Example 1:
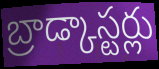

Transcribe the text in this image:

బ్రాడ్కాస్టర్లు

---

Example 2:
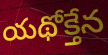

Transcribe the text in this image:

యథోక్తేన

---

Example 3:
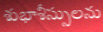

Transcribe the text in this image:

శుభాశీస్సులను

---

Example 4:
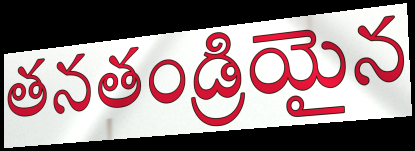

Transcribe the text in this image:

తనతండ్రియైన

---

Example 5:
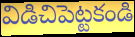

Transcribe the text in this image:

విడిచిపెట్టకండి